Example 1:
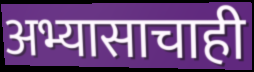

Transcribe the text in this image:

अभ्यासाचाही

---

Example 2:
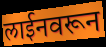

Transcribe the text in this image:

लाईनवरून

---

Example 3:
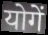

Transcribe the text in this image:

योगें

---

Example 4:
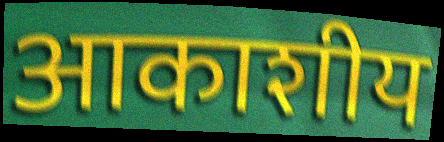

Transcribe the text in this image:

आकाशीय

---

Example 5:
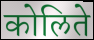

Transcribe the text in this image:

कोलिते